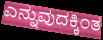
ಎನ್ನುವುದಕ್ಕಿಂತ